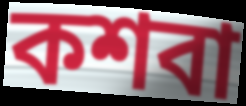
কশবা